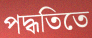
পদ্ধতিতে